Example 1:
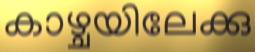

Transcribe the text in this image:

കാഴ്ചയിലേക്കു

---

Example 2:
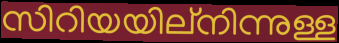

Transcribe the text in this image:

സിറിയയില്നിന്നുള്ള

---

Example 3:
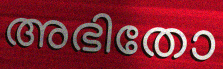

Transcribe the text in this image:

അഭിതോ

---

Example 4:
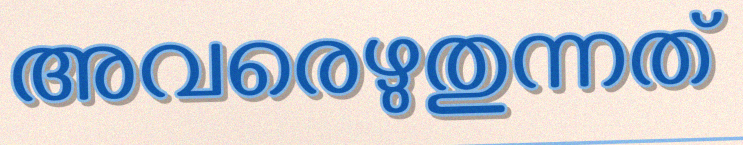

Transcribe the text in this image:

അവരെഴുതുന്നത്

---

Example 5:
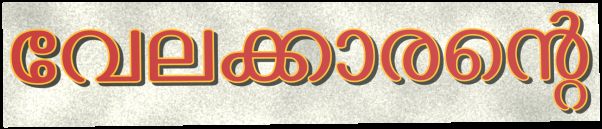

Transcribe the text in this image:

വേലക്കാരന്റെ